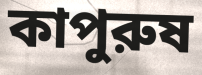
কাপুরুষ